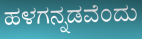
ಹಳಗನ್ನಡವೆಂದು